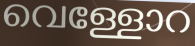
വെള്ളോറ